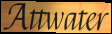
Attwater